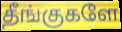
தீங்குகளே